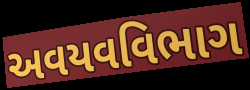
અવયવવિભાગ